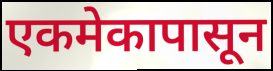
एकमेकापासून